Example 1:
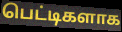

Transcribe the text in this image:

பெட்டிகளாக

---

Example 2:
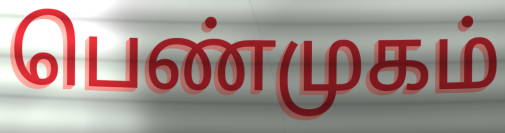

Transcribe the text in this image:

பெண்முகம்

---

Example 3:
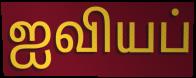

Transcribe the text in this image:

ஐவியப்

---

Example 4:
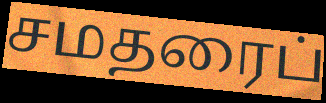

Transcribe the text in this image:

சமதரைப்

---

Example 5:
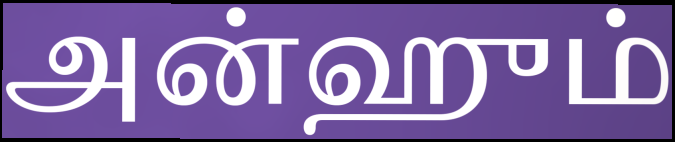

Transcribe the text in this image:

அன்ஹும்